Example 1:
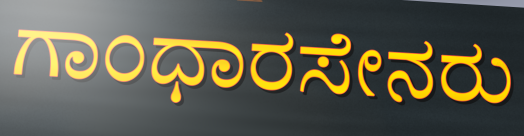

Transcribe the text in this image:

ಗಾಂಧಾರಸೇನರು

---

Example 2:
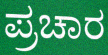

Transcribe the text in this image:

ಪ್ರಚಾರ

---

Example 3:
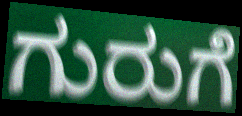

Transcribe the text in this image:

ಗುರುಗೆ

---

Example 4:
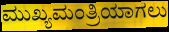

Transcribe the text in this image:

ಮುಖ್ಯಮಂತ್ರಿಯಾಗಲು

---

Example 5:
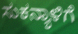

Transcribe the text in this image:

ಸುಕನ್ಯಾಳಿಗೆ